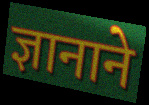
ज्ञानाने